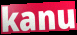
kanu